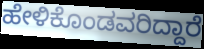
ಹೇಳಿಕೊಂಡವರಿದ್ದಾರೆ